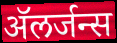
ॲलर्जन्स